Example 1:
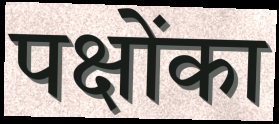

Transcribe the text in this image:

पक्षोंका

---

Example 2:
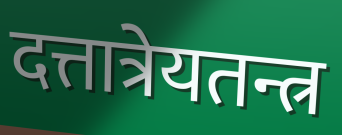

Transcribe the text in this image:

दत्तात्रेयतन्त्र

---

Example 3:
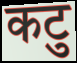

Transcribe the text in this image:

कटु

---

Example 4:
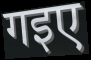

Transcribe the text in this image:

गइए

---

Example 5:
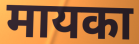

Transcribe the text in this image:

मायका